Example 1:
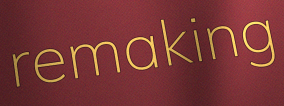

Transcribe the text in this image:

remaking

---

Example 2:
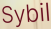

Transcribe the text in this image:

Sybil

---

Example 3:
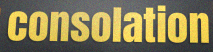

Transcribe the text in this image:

consolation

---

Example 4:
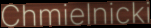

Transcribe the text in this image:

Chmielnicki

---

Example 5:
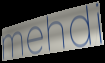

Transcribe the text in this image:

mehdi